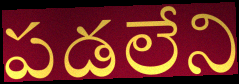
పడలేని